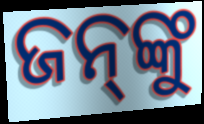
ଜନ୍‍ଙ୍କୁ